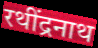
रथींद्रनाथ